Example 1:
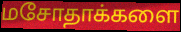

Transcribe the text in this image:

மசோதாக்களை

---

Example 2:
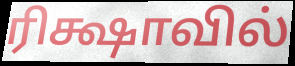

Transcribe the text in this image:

ரிக்ஷாவில்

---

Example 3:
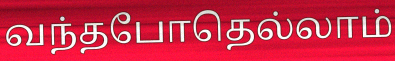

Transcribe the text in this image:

வந்தபோதெல்லாம்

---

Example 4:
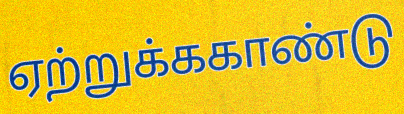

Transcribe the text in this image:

ஏற்றுக்ககாண்டு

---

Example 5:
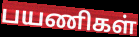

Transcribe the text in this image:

பயணிகள்